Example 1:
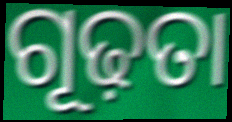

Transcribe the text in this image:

ଗୂଢ଼ତା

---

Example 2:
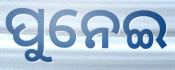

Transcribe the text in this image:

ପୁନେଇ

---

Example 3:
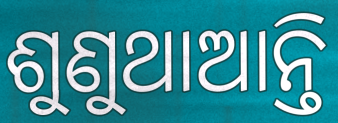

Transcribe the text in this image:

ଶୁଣୁଥାଆନ୍ତି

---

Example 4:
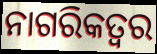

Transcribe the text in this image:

ନାଗରିକତ୍ୱର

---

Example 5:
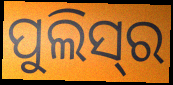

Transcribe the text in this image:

ପୁଲିସ୍‌ର